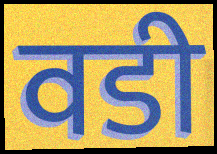
वडी